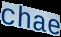
chae